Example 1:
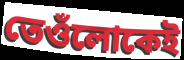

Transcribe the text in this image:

তেওঁলোকেই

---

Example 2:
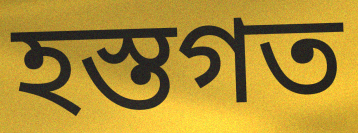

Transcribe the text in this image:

হস্তগত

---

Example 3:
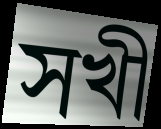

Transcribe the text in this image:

সখী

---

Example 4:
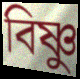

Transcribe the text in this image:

বিষ্ণু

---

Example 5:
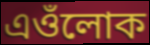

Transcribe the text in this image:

এওঁলোক